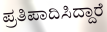
ಪ್ರತಿಪಾದಿಸಿದ್ದಾರೆ